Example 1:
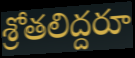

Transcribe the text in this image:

శ్రోతలిద్దరూ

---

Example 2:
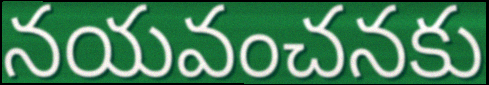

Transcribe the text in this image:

నయవంచనకు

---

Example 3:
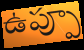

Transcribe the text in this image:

ఉప్పూ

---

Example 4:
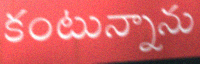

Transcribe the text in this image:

కంటున్నాను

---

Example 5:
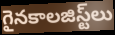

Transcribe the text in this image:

గైనకాలజిస్ట్‌లు